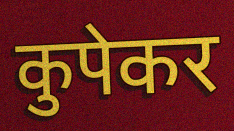
कुपेकर